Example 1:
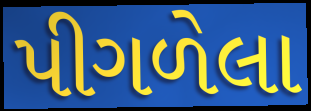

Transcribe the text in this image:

પીગળેલા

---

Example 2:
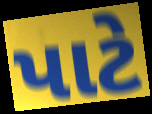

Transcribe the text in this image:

પાટે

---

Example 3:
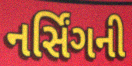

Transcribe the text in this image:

નર્સિંગની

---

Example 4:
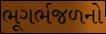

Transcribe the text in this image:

ભૂગર્ભજળનો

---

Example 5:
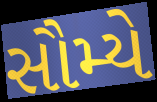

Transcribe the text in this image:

સૌમ્યે